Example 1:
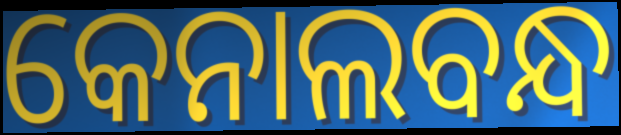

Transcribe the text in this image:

କେନାଲବନ୍ଧ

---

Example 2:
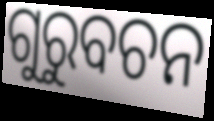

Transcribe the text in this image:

ଗୁରୁବଚନ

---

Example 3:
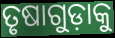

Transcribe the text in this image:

ତୃଷାଗୁଡ଼ାକୁ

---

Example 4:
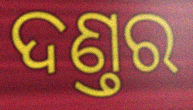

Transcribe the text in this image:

ଦଣ୍ତର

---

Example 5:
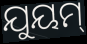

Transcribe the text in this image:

ଯୁୟମ୍